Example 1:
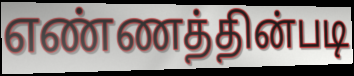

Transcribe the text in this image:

எண்ணத்தின்படி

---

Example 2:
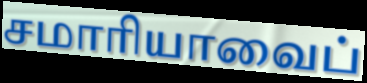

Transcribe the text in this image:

சமாரியாவைப்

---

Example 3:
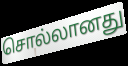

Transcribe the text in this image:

சொல்லானது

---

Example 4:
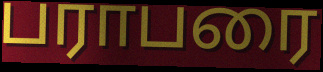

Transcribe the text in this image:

பராபரை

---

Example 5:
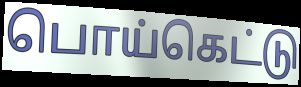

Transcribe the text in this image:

பொய்கெட்டு